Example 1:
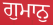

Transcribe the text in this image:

ਗੁਮਾਨੁ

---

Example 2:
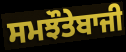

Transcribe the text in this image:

ਸਮਝੌਤੇਬਾਜੀ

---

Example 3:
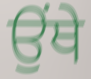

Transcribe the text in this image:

ਉੰਥੇ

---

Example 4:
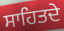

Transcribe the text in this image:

ਸਾਹਿਤਦੇ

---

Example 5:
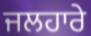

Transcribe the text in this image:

ਜਲਹਾਰੇ